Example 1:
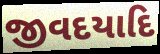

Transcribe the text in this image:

જીવદયાદિ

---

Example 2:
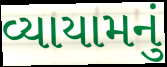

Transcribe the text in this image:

વ્યાયામનું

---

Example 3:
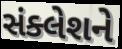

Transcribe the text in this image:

સંક્લેશને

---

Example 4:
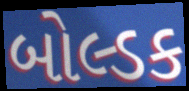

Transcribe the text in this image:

બોલ્ડક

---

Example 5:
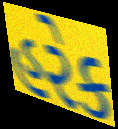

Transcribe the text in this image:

હરેક